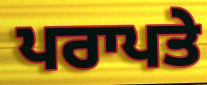
ਪਰਾਪਤੇ